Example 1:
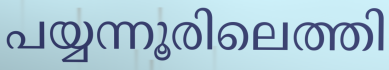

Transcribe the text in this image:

പയ്യന്നൂരിലെത്തി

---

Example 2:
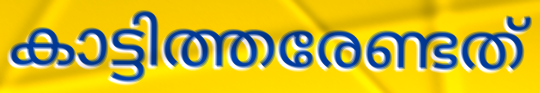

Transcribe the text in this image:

കാട്ടിത്തരേണ്ടത്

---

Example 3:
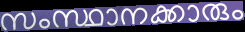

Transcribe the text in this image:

സംസ്ഥാനക്കാരും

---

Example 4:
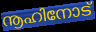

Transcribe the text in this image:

നൂഹിനോട്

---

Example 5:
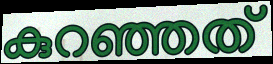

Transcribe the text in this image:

കുറഞ്ഞത്